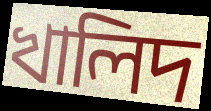
খালিদ